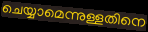
ചെയ്യാമെന്നുള്ളതിനെ